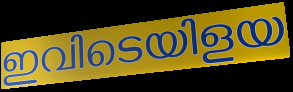
ഇവിടെയിളയ